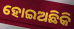
ହୋଇଅଛିକି